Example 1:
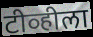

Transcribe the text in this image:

टीव्हीला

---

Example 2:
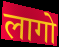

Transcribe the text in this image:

लागो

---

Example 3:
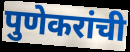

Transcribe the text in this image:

पुणेकरांची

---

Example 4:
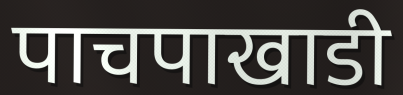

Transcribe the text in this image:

पाचपाखाडी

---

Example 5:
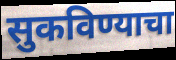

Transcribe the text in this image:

सुकविण्याचा